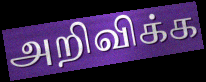
அறிவிக்க